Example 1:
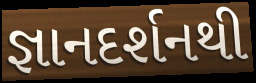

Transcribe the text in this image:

જ્ઞાનદર્શનથી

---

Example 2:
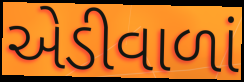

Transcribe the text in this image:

એડીવાળાં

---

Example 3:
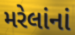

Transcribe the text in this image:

મરેલાંનાં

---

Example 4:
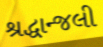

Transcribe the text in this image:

શ્રદ્ધાન્જલી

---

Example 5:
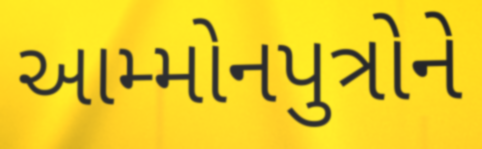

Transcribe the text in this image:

આમ્મોનપુત્રોને